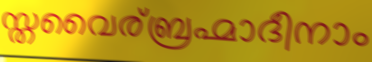
സ്തവൈര്ബ്രഹ്മാദീനാം